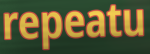
repeatu